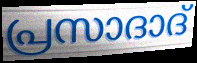
പ്രസാദാദ്